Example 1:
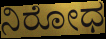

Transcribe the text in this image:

ನಿರೋಧ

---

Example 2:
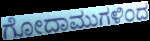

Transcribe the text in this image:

ಗೋದಾಮುಗಳಿಂದ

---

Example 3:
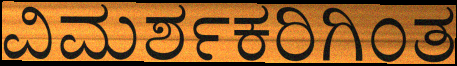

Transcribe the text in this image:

ವಿಮರ್ಶಕರಿಗಿಂತ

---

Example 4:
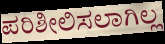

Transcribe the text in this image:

ಪರಿಶೀಲಿಸಲಾಗಿಲ್ಲ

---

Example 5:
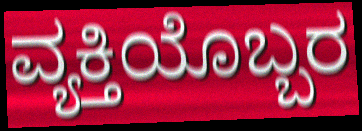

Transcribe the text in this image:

ವ್ಯಕ್ತಿಯೊಬ್ಬರ